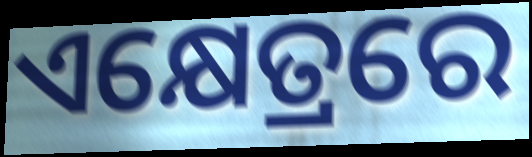
ଏକ୍ଷେତ୍ରରେ